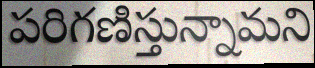
పరిగణిస్తున్నామని